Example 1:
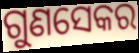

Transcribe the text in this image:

ଗୁଣସେକର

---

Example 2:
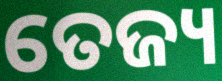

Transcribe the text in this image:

ତେଜ୍ୟ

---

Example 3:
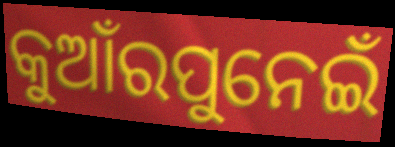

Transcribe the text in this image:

କୁଆଁରପୁନେଇଁ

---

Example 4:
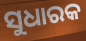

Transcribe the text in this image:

ସୁଧାରକ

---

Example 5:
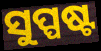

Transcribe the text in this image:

ସୁପ୍ପଷ୍ଟ